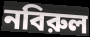
নবিরুল